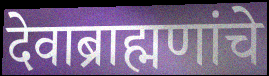
देवाब्राह्मणांचे